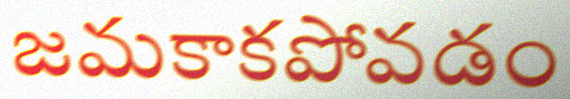
జమకాకపోవడం